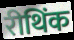
रीथिंक